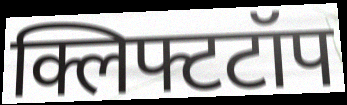
क्लिफ्टटॉप